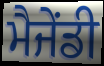
ਮੈਜੇਂਡੀ